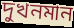
দুখনমান